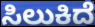
ಸಿಲುಕಿದೆ